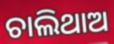
ଚାଲିଥାଅ